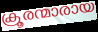
ക്രൂരന്മാരായ